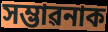
সম্ভাৱনাক